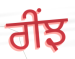
ਰੀਂਝ